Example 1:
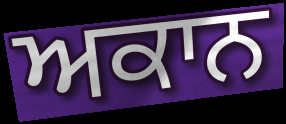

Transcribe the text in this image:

ਅਕਾਨ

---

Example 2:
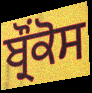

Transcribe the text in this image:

ਬ੍ਰੌਂਕੋਸ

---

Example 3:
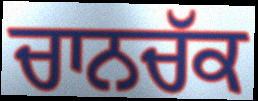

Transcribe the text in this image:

ਚਾਨਚੱਕ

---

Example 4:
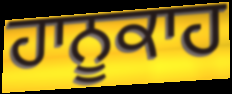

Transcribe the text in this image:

ਹਾਨੂਕਾਹ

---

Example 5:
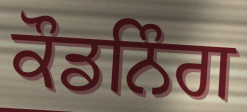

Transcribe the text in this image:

ਕੌਡਨਿੰਗ